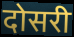
दोसरी